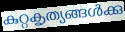
കുറ്റകൃത്യങ്ങൾക്കു